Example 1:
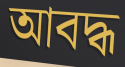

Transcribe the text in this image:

আবদ্ধ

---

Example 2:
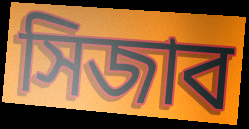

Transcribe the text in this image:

সিজাব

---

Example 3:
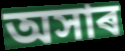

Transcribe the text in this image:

অসাৰ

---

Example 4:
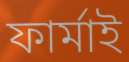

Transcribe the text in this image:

ফাৰ্মাই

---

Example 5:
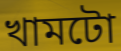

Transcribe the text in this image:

খামটো